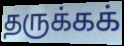
தருக்கக்